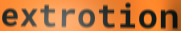
extrotion